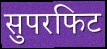
सुपरफिट